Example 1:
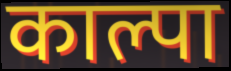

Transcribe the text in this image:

काल्पा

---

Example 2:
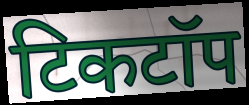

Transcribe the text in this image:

टिकटॉप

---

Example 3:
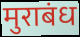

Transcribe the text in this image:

मुराबंध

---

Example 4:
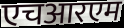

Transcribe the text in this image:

एचआरएम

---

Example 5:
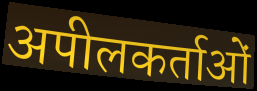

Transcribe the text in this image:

अपीलकर्ताओं